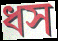
ধস